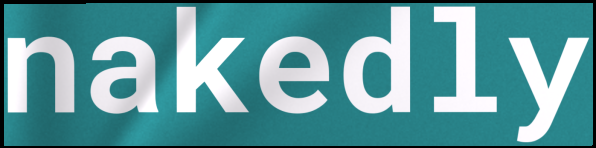
nakedly